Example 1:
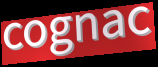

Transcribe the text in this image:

cognac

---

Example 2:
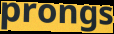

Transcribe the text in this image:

prongs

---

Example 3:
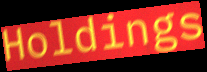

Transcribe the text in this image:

Holdings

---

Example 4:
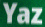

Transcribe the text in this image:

Yaz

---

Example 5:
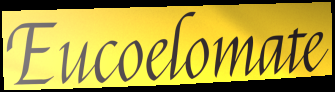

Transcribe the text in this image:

Eucoelomate